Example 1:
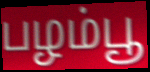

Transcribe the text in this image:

பழம்பூ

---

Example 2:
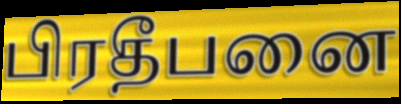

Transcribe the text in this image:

பிரதீபனை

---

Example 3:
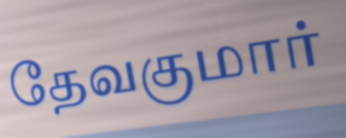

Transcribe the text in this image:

தேவகுமார்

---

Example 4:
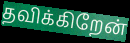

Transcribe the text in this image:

தவிக்கிறேன்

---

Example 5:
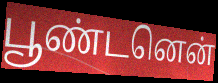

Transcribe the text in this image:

பூண்டனென்